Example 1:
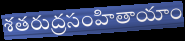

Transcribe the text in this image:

శతరుద్రసంహితాయాం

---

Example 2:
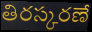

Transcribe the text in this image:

తిరస్కరణే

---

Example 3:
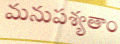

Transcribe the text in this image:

మనుపశ్యతాం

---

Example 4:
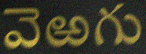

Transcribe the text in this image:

వెఱగు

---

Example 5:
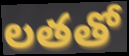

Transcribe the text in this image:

లతతో